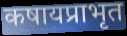
कषायप्राभृत